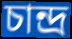
চান্দ্ৰ